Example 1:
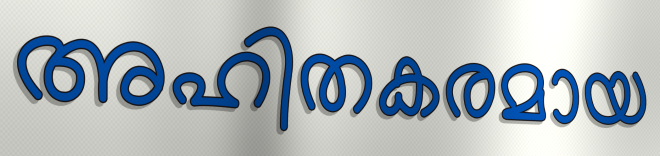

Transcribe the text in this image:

അഹിതകരമായ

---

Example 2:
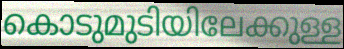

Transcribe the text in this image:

കൊടുമുടിയിലേക്കുള്ള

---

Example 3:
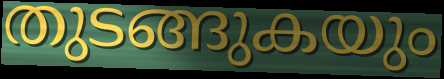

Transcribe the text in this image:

തുടങ്ങുകയും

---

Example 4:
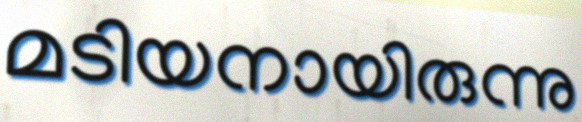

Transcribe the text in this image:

മടിയനായിരുന്നു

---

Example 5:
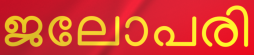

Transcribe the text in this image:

ജലോപരി